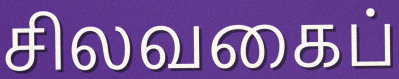
சிலவகைப்